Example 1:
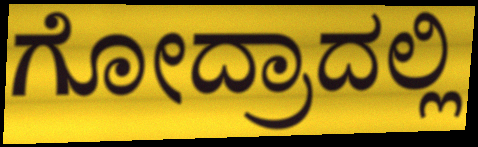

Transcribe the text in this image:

ಗೋದ್ರಾದಲ್ಲಿ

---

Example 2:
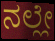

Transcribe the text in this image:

ನಲ್ಲೇ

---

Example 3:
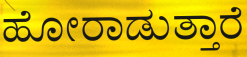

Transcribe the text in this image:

ಹೋರಾಡುತ್ತಾರೆ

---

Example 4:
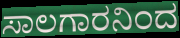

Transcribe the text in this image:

ಸಾಲಗಾರನಿಂದ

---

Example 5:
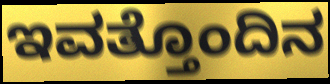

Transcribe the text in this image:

ಇವತ್ತೊಂದಿನ